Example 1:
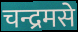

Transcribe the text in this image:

चन्द्रमसे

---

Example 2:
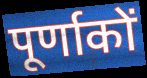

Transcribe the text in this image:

पूर्णाकों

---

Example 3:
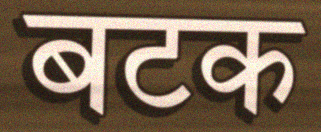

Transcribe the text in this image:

बटक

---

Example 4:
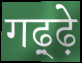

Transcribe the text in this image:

गढ़्ढ़े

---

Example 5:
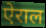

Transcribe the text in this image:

ऐराल